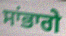
ਸਾਂਭਾਗੇ